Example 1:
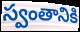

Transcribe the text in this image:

స్వంతానికి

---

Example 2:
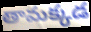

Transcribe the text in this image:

తామక్కడ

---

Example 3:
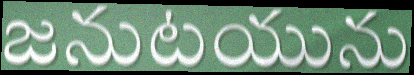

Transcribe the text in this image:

జనుటయును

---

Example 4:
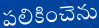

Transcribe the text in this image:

పలికించెను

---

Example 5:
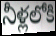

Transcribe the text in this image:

నీళ్లలోకి